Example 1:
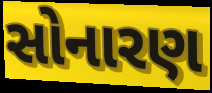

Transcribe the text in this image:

સોનારણ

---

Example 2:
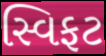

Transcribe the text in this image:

સ્વિફટ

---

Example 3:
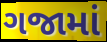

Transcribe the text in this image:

ગજામાં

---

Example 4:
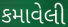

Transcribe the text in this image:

કમાવેલી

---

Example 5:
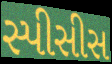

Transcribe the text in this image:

સ્પીસીસ